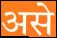
असे